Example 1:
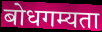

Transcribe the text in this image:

बोधगम्यता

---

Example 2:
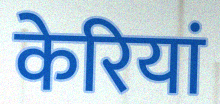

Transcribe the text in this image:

केरियां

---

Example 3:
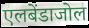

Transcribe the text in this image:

एलबेंडाजोल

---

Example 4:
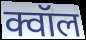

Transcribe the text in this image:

क्वॉल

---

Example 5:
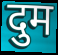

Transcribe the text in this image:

दुम